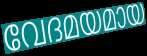
വേദമയമായ